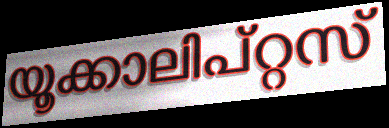
യൂക്കാലിപ്റ്റസ്